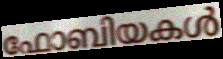
ഫോബിയകൾ